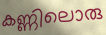
കണ്ണിലൊരു